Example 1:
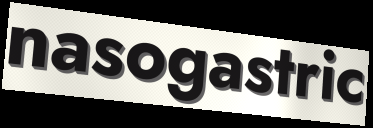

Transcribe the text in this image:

nasogastric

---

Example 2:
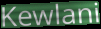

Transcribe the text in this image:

Kewlani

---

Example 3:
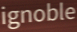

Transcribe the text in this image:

ignoble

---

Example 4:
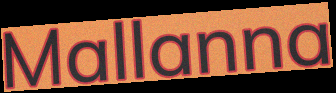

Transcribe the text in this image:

Mallanna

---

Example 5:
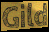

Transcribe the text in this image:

Gild